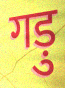
गड़ु